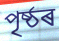
পৃষ্ঠৰ